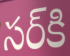
సర్‌కి